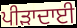
ਪੀੜਾਦਾਈ